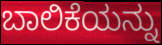
ಬಾಲಿಕೆಯನ್ನು